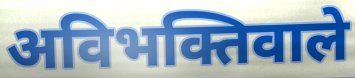
अविभक्तिवाले